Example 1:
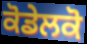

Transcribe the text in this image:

ਕੋਡੇਲਕੋ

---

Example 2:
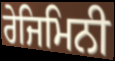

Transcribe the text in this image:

ਰੇਜਿਮਿਨੀ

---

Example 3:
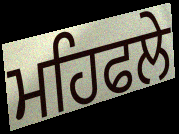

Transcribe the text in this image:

ਮਹਿਫਲੇ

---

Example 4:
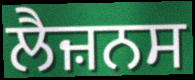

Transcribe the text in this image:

ਲੈਜ਼ਨਸ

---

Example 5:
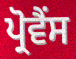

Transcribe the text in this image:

ਪ੍ਰੋਵੈਂਸ